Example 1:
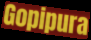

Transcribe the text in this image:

Gopipura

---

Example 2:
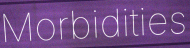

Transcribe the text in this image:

Morbidities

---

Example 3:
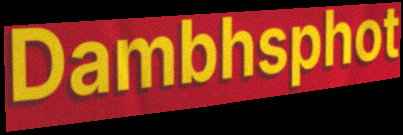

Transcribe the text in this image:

Dambhsphot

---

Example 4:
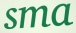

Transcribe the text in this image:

sma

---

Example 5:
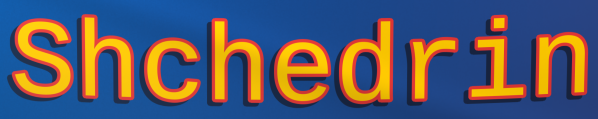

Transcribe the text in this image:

Shchedrin